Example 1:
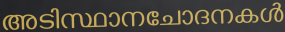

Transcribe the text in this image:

അടിസ്ഥാനചോദനകൾ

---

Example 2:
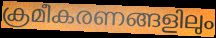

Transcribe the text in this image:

ക്രമീകരണങ്ങളിലും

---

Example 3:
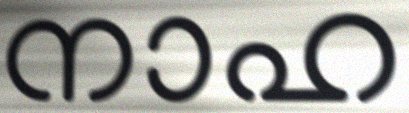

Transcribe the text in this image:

നാഹ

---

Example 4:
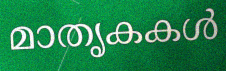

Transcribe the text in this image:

മാതൃകകൾ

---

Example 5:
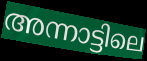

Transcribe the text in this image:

അന്നാട്ടിലെ